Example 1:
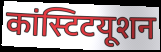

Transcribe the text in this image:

कांस्टिटयूशन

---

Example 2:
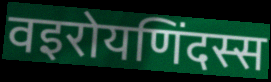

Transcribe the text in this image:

वइरोयणिंदस्स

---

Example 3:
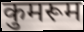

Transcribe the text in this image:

कुमरूम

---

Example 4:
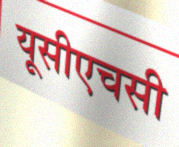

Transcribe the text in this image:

यूसीएचसी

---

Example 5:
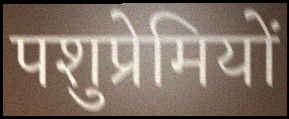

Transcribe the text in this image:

पशुप्रेमियों